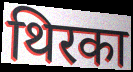
थिरका